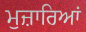
ਮੁਜ਼ਾਰਿਆਂ